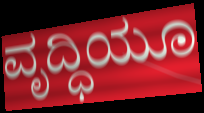
ವೃದ್ಧಿಯೂ